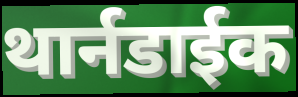
थार्नडाईक